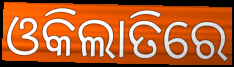
ଓକିଲାତିରେ